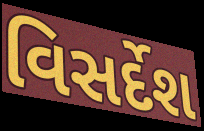
વિસર્દેશ